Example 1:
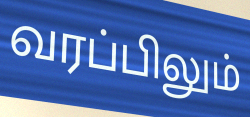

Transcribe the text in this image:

வரப்பிலும்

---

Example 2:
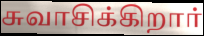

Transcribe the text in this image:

சுவாசிக்கிறார்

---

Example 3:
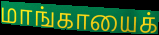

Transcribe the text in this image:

மாங்காயைக்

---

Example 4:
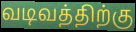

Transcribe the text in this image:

வடிவத்திற்கு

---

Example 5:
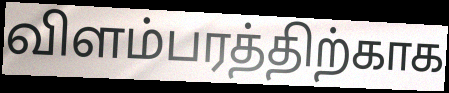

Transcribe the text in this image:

விளம்பரத்திற்காக